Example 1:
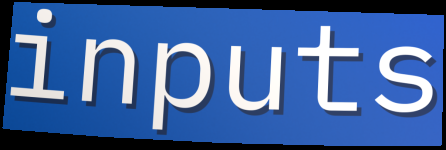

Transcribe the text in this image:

inputs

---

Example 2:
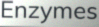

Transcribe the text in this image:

Enzymes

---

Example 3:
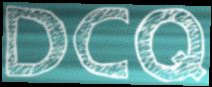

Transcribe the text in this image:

DCQ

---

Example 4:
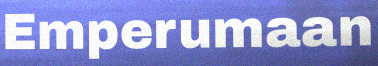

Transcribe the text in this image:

Emperumaan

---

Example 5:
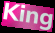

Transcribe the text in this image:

King